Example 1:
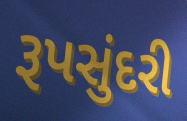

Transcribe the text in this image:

રૂપસુંદરી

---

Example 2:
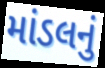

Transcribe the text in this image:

માંડલનું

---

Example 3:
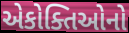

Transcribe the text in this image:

એકોક્તિઓનો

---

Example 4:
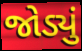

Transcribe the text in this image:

જોડ્યું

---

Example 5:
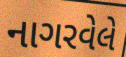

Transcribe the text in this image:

નાગરવેલે